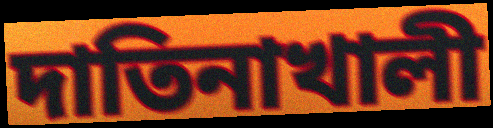
দাতিনাখালী